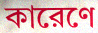
কারেণে